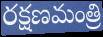
రక్షణమంత్రి